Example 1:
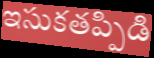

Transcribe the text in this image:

ఇసుకతప్పిడి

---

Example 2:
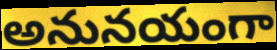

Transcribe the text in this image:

అనునయంగా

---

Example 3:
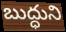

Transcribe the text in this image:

బుద్ధుని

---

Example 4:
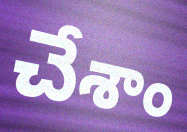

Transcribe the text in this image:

చేశాం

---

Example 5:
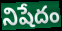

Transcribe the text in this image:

నిషేదం